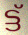
ട്ട്